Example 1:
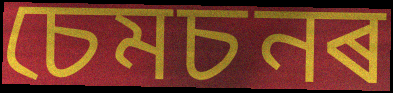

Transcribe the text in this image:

চেমচনৰ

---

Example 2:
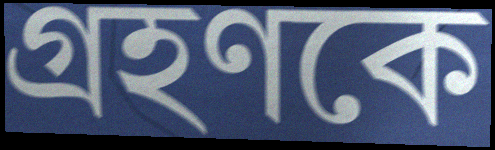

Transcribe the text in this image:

গ্ৰহণকে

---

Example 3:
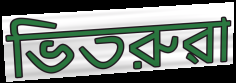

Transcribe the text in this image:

ভিতৰুৱা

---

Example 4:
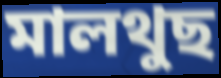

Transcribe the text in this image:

মালথুছ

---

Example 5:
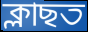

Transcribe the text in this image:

ক্লাছত